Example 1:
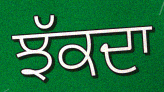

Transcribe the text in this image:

ਝੱਕਦਾ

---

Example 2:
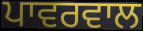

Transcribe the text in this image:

ਪਾਵਰਵਾਲ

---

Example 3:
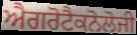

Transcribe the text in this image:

ਐਗਰੋਟੈਕਨੋਲੋਜੀ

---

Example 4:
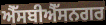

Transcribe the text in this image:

ਐੱਸਬੀਐੱਸਨਗਰ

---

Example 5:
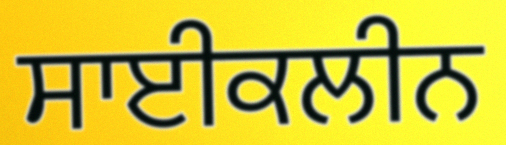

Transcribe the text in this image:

ਸਾਈਕਲੀਨ